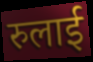
रुलाई